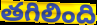
తగిలింది